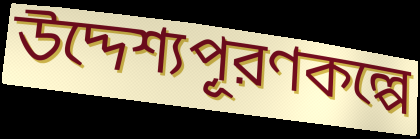
উদ্দেশ্যপূরণকল্পে